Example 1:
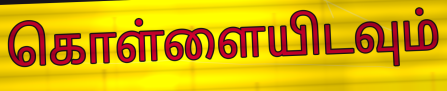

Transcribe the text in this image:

கொள்ளையிடவும்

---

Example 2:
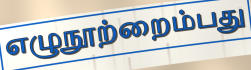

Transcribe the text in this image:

எழுநூற்றைம்பது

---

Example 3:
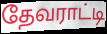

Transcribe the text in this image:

தேவராட்டி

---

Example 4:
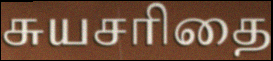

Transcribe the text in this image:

சுயசரிதை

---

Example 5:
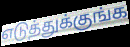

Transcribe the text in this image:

எடுத்துக்குங்க